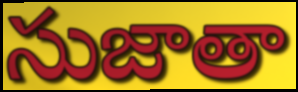
సుజాతా